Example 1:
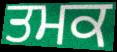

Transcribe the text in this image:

ਤਮਕ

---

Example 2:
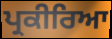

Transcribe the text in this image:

ਪ੍ਰਕੀਰਿਆ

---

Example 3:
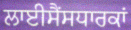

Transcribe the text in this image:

ਲਾਈਸੈਂਸਧਾਰਕਾਂ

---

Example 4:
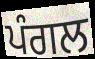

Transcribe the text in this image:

ਪੰਗਲ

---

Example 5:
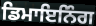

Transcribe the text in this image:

ਡਿਮਾਇਨਿੰਗ